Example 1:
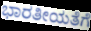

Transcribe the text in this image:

ಭಾರತೀಯತೆಗೆ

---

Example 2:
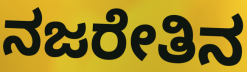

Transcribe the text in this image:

ನಜರೇತಿನ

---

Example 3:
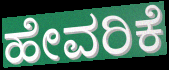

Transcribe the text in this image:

ಹೇವರಿಕೆ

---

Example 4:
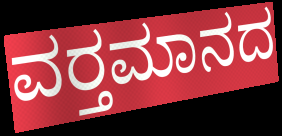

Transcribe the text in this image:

ವರ‍್ತಮಾನದ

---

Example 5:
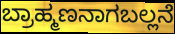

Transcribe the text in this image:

ಬ್ರಾಹ್ಮಣನಾಗಬಲ್ಲನೆ